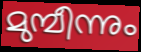
മുമ്പീന്നും